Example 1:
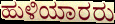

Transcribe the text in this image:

ಹುಳಿಯಾರರು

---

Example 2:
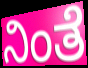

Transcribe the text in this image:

ನಿಂತೆ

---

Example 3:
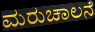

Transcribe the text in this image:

ಮರುಚಾಲನೆ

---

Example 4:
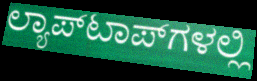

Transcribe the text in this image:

ಲ್ಯಾಪ್‌ಟಾಪ್‌ಗಳಲ್ಲಿ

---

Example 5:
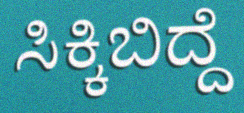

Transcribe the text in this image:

ಸಿಕ್ಕಿಬಿದ್ದೆ